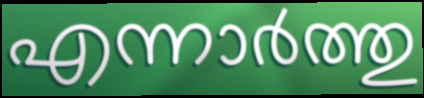
എന്നാർത്തു